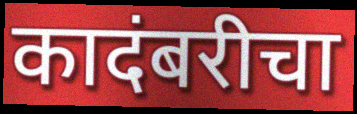
कादंबरीचा